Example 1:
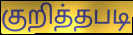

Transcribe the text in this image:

குறித்தபடி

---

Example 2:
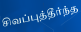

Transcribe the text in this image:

சிவப்புத்தீர்ந்த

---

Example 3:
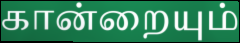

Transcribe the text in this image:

கான்றையும்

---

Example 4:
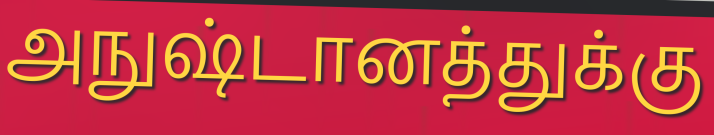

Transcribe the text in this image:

அநுஷ்டானத்துக்கு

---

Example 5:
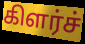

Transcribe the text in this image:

கிளர்ச்